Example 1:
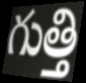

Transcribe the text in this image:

గుత్తి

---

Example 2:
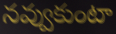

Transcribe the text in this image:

నవ్వుకుంటా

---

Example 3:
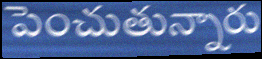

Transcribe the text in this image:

పెంచుతున్నారు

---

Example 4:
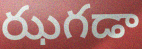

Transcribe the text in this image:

ఝగడా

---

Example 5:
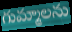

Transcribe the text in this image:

గుమ్మాలను